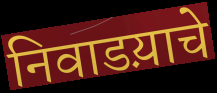
निवाडय़ाचे